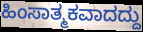
ಹಿಂಸಾತ್ಮಕವಾದದ್ದು